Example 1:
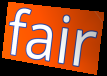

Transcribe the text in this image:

fair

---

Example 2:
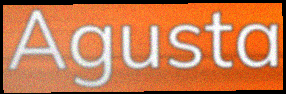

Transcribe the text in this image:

Agusta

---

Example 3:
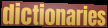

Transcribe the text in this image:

dictionaries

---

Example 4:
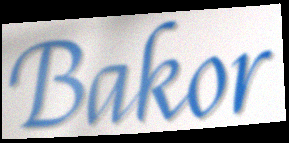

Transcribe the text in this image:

Bakor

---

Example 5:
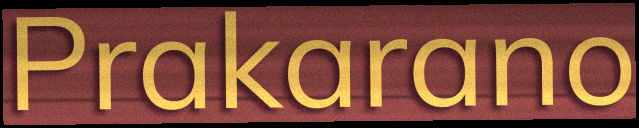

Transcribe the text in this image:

Prakarano